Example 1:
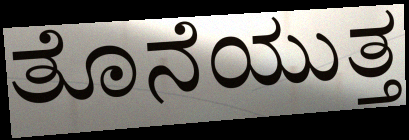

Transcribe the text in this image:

ತೊನೆಯುತ್ತ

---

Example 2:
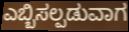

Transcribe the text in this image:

ಎಬ್ಬಿಸಲ್ಪಡುವಾಗ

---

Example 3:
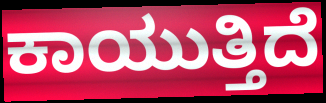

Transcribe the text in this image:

ಕಾಯುತ್ತಿದೆ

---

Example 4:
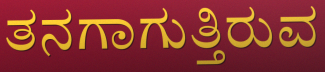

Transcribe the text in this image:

ತನಗಾಗುತ್ತಿರುವ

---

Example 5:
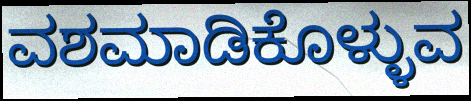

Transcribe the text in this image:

ವಶಮಾಡಿಕೊಳ್ಳುವ